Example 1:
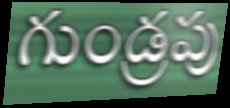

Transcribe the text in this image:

గుండ్రపు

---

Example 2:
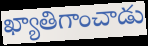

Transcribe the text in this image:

ఖ్యాతిగాంచాడు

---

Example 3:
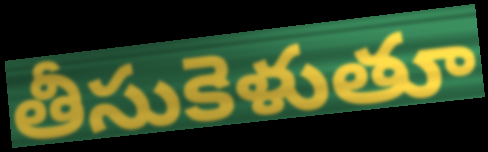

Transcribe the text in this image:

తీసుకెళుతూ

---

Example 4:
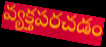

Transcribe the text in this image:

వ్యక్తపరచడం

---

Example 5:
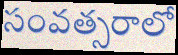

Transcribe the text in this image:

సంవత్సరాలో